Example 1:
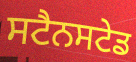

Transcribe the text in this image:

ਸਟੈਨਸਟੇਡ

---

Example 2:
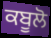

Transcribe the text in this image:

ਕਬੂਲੋ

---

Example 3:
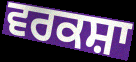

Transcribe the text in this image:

ਵਰਕਸ਼ਾ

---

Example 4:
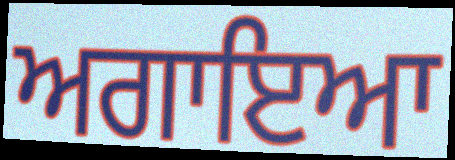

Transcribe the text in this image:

ਅਗਾਇਆ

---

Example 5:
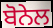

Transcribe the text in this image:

ਬੋਨੇਲ